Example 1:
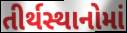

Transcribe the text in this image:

તીર્થસ્થાનોમાં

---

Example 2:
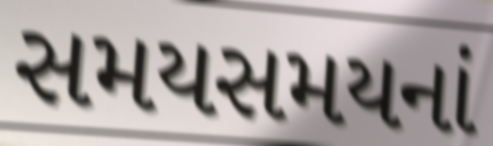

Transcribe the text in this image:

સમયસમયનાં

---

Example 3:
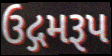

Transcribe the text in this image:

ઉદ્ગમરૂપ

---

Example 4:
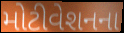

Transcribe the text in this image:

મોટીવેશનના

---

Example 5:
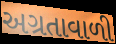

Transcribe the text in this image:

અગ્રતાવાળી